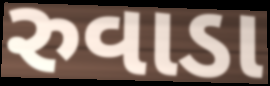
રુવાડા